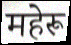
महेरू